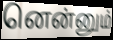
னென்னும்